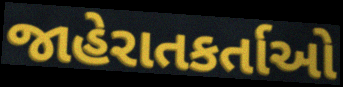
જાહેરાતકર્તાઓ